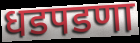
धडपडणा